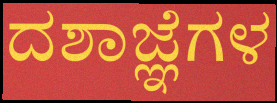
ದಶಾಜ್ಞೆಗಳ